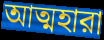
আত্মহারা